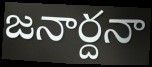
జనార్దనా